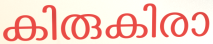
കിരുകിരാ